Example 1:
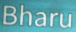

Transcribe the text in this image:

Bharu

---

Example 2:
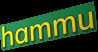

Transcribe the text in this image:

hammu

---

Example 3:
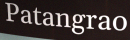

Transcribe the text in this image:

Patangrao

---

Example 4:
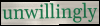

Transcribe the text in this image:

unwillingly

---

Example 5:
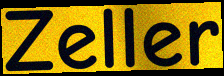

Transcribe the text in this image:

Zeller